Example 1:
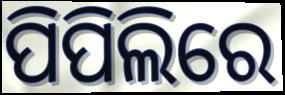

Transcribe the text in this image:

ପିପିଲିରେ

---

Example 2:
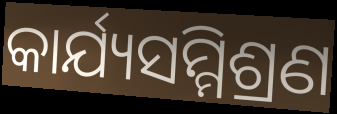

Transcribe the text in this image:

କାର୍ଯ୍ୟସମ୍ମିଶ୍ରଣ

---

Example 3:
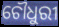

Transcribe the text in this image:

ଚୌଧୁରୀ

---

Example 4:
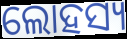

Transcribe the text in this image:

ଲୋହସ୍ୟ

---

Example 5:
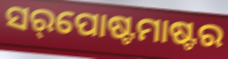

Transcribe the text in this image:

ସର୍‌ପୋଷ୍ଟମାଷ୍ଟର